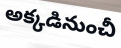
అక్కడినుంచీ